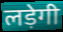
लड़ेगी